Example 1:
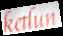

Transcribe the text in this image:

ketlun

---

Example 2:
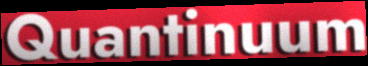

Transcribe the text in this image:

Quantinuum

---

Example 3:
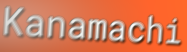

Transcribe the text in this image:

Kanamachi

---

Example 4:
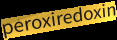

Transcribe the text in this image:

peroxiredoxin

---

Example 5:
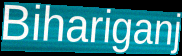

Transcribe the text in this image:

Bihariganj